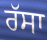
ਰੱਸਾ